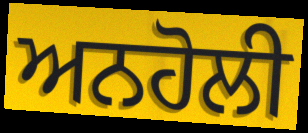
ਅਨਹੋਲੀ